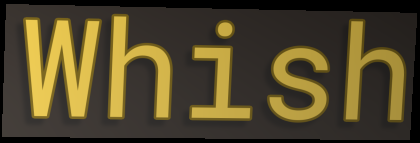
Whish